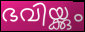
ഭവിയ്ക്കും